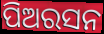
ପିଅରସନ